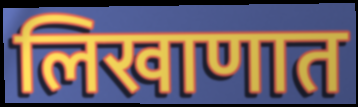
लिखाणात